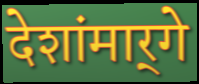
देशांमार्गे